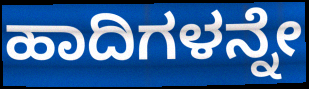
ಹಾದಿಗಳನ್ನೇ